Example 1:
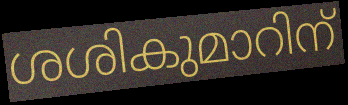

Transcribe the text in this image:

ശശികുമാറിന്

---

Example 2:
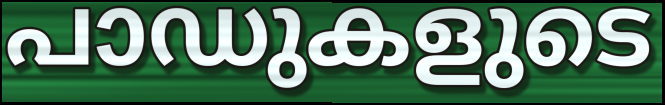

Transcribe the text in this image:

പാഡുകളുടെ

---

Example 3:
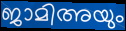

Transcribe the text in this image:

ജാമിഅയും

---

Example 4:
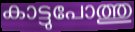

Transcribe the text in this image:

കാട്ടുപോത്തു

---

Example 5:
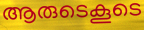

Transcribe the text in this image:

ആരുടെകൂടെ